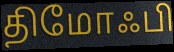
திமோஃபி